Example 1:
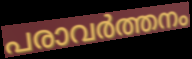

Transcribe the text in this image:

പരാവർത്തനം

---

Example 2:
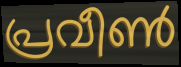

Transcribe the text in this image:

പ്രവീൺ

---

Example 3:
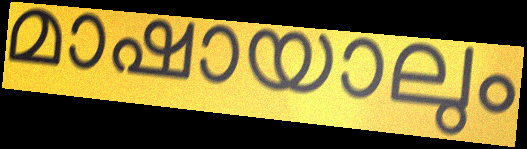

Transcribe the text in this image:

മാഷായാലും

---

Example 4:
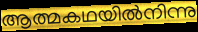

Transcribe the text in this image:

ആത്മകഥയിൽനിന്നു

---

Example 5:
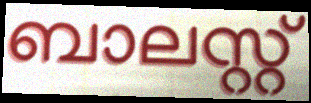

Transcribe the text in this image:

ബാലസ്റ്റ്